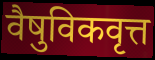
वैषुविकवृत्त